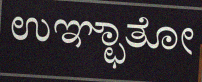
ಉಞ್ಛಾತೋ